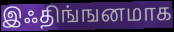
இஃதிங்ஙனமாக